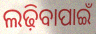
ଲଢ଼ିବାପାଇଁ